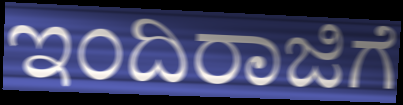
ಇಂದಿರಾಜಿಗೆ